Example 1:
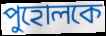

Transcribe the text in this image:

পুহোলকে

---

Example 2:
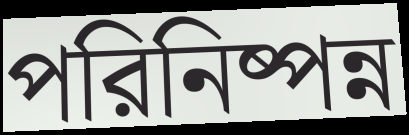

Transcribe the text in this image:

পরিনিষ্পন্ন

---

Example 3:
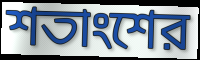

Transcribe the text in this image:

শতাংশের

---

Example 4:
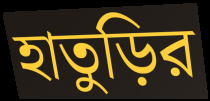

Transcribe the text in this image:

হাতুড়ির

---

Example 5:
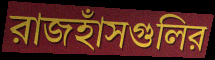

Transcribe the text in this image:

রাজহাঁসগুলির